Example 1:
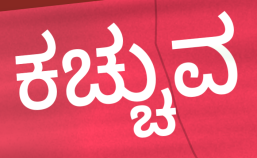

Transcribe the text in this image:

ಕಚ್ಚುವ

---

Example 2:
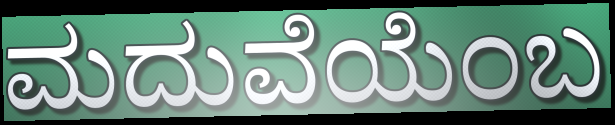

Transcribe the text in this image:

ಮದುವೆಯೆಂಬ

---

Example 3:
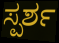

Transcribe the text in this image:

ಸ್ಪರ್ಶ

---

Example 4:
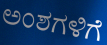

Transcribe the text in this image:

ಅಂಶಗಳಿಗೆ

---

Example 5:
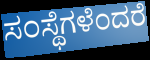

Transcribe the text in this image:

ಸಂಸ್ಥೆಗಳೆಂದರೆ